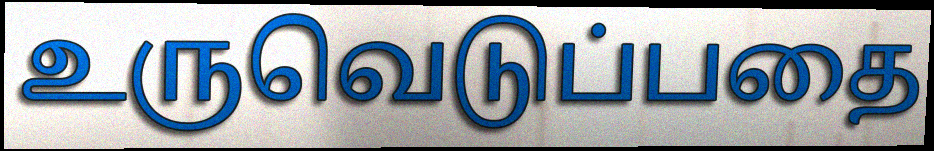
உருவெடுப்பதை